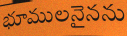
భూములనైనను